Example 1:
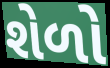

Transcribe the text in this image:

શેળો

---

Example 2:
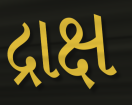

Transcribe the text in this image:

દ્રાક્ષ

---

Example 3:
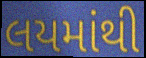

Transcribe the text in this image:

લયમાંથી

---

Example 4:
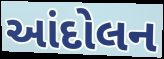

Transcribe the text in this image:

આંદોલન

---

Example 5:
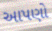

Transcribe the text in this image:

આપણો